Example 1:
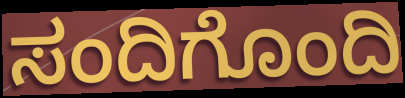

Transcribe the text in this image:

ಸಂದಿಗೊಂದಿ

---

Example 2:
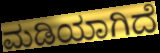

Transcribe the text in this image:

ಮಡಿಯಾಗಿದೆ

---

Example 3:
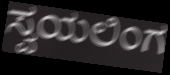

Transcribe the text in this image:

ಸ್ವಯಲಿಂಗ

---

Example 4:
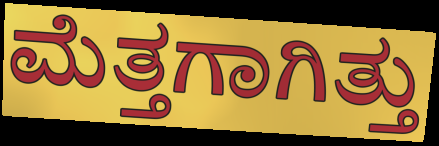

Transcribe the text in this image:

ಮೆತ್ತಗಾಗಿತ್ತು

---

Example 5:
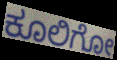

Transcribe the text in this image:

ಕೂಲಿಗೋ